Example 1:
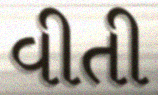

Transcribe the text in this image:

વીતી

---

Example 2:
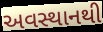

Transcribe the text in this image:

અવસ્થાનથી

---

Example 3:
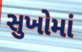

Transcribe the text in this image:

સુખોમાં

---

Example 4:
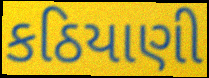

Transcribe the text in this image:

કઠિયાણી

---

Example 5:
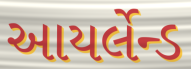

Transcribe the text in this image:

આયર્લેન્ડ